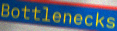
Bottlenecks